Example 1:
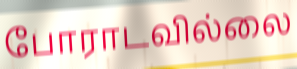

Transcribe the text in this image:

போராடவில்லை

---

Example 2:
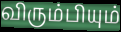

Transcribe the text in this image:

விரும்பியும்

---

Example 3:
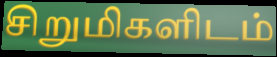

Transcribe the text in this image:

சிறுமிகளிடம்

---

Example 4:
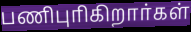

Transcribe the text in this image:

பணிபுரிகிறார்கள்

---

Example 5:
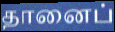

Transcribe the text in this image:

தானைப்